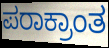
ಪರಾಕ್ರಾಂತ